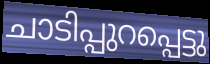
ചാടിപ്പുറപ്പെട്ടു